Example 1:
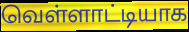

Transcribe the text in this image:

வெள்ளாட்டியாக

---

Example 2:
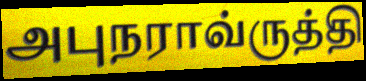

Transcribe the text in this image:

அபுநராவ்ருத்தி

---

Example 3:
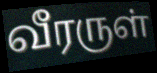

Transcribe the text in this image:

வீரருள்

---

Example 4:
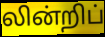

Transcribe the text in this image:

லின்றிப்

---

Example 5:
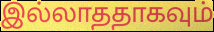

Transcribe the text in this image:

இல்லாததாகவும்